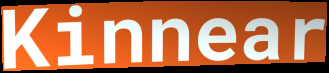
Kinnear